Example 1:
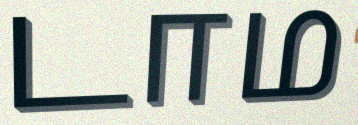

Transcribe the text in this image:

டாம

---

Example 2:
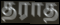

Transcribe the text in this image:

தராத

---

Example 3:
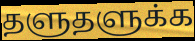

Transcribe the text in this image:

தளுதளுக்க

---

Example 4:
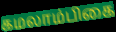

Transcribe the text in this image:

கமலாம்பிகை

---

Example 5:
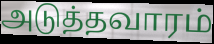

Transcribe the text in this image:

அடுத்தவாரம்